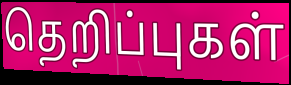
தெறிப்புகள்